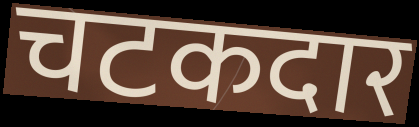
चटकदार